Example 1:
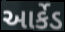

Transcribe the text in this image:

આર્કેડ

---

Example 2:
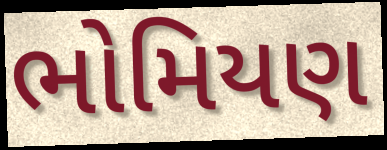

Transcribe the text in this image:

ભોમિયણ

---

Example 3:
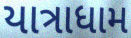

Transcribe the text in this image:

યાત્રાધામ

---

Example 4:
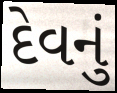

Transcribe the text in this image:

દેવનું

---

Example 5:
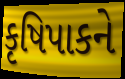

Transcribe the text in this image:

કૃષિપાકને